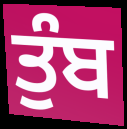
ਤੁੰਬ